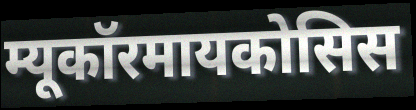
म्यूकॉरमायकोसिस